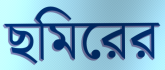
ছমিরের